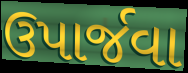
ઉપાર્જવા